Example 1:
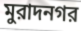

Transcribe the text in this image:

মুরাদনগর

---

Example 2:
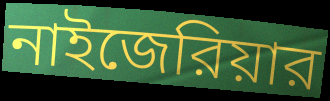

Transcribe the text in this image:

নাইজেরিয়ার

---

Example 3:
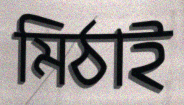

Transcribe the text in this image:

মিঠাই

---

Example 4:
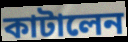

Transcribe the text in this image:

কাটালেন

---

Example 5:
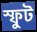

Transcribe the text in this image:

স্ফুট